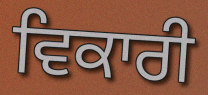
ਵਿਕਾਰੀ